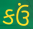
કઉં